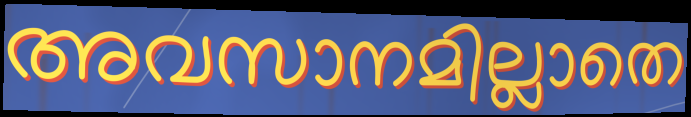
അവസാനമില്ലാതെ